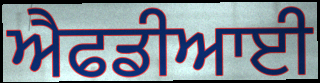
ਐਫਡੀਆਈ